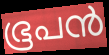
ഭൂപൻ